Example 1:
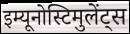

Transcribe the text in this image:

इम्यूनोस्टिमुलेंट्स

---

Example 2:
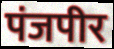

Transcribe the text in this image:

पंजपीर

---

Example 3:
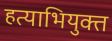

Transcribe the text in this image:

हत्याभियुक्त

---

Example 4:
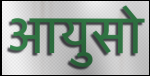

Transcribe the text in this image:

आयुसो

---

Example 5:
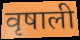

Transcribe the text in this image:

वृषाली